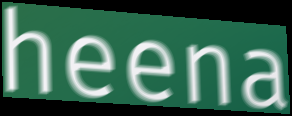
heena